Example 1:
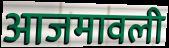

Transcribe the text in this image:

आजमावली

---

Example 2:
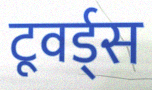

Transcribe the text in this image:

टूवर्ड्स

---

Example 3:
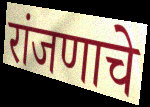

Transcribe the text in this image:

रांजणाचे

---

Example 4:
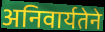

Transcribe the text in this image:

अनिवार्यतेने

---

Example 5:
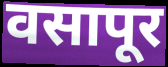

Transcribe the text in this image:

वसापूर